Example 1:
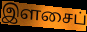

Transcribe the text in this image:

இளசைப்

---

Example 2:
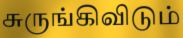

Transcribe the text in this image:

சுருங்கிவிடும்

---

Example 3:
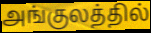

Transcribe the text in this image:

அங்குலத்தில்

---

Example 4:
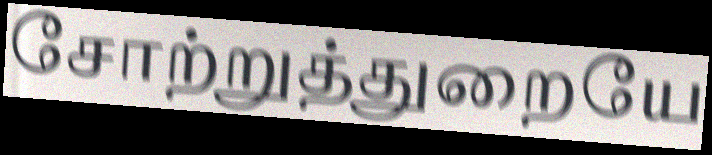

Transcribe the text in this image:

சோற்றுத்துறையே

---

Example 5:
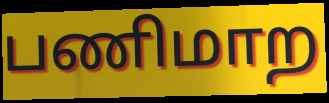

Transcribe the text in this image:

பணிமாற